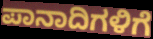
ಪಾನಾದಿಗಳಿಗೆ